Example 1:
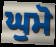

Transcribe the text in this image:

ਘੁਮੋ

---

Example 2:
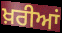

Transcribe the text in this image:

ਖ਼ਰੀਆਂ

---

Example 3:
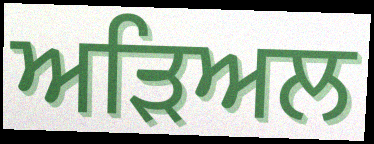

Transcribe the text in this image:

ਅੜਿਅਲ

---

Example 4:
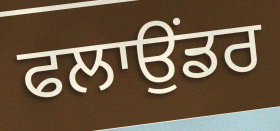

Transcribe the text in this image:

ਫਲਾਉਂਡਰ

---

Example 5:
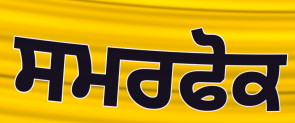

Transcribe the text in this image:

ਸਮਰਫੋਕ